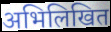
अभिलिखित